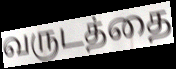
வருடத்தை